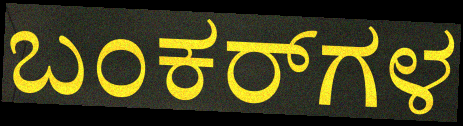
ಬಂಕರ್‌ಗಳ